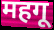
महगू